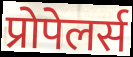
प्रोपेलर्स